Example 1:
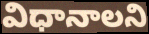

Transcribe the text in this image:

విధానాలని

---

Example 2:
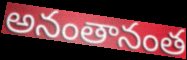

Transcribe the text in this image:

అనంతానంత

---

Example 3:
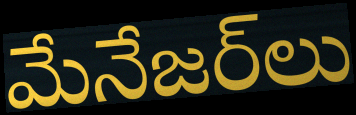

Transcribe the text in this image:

మేనేజర్‌లు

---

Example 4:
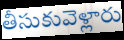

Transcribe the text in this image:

తీసుకువెళ్లారు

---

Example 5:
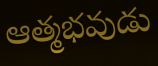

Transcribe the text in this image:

ఆత్మభవుడు